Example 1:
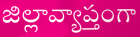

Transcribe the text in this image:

జిల్లావ్యాప్తంగా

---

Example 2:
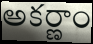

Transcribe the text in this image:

అకర్ణాం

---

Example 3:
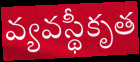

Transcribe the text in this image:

వ్యవస్థీకృత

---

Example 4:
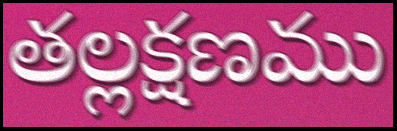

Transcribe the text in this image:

తల్లక్షణము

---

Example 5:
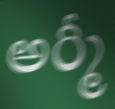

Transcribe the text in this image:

అర్మీ